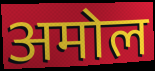
अमोल